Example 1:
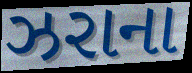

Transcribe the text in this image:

ઝરાના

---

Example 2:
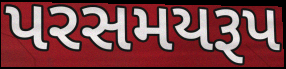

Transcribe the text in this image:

પરસમયરૂપ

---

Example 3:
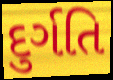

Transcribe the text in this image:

દુર્ગતિ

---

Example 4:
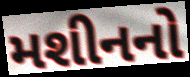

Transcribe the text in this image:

મશીનનો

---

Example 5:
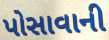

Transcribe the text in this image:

પોસાવાની